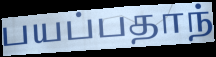
பயப்பதாந்